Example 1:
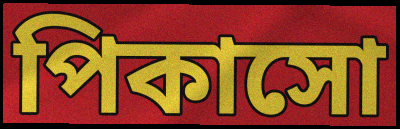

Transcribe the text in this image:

পিকাসো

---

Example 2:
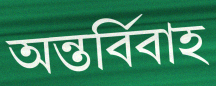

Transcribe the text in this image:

অন্তর্বিবাহ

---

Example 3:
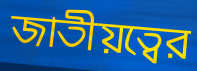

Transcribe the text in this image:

জাতীয়ত্বের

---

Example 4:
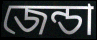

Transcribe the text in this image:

জেন্ডা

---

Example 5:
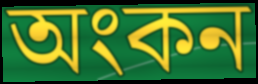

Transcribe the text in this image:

অংকন